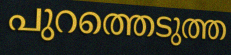
പുറത്തെടുത്ത